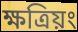
ক্ষত্রিয়ং